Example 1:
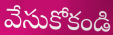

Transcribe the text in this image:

వేసుకోకండి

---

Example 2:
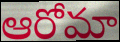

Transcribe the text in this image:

ఆరోమా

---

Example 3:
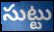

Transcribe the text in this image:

సుట్టు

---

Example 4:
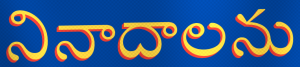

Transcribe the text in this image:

నినాదాలను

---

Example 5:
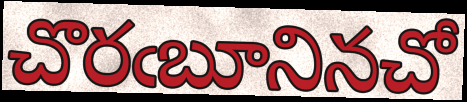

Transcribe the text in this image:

చొరఁబూనినచో